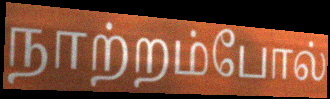
நாற்றம்போல்